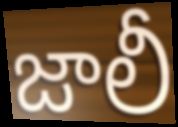
జాలీ